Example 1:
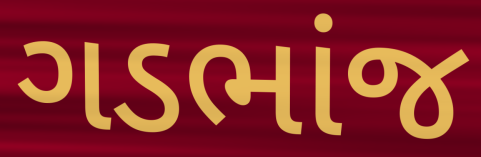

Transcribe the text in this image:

ગડભાંજ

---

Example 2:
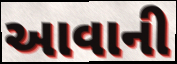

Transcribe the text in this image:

આવાની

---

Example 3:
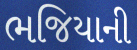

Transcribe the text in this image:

ભજિયાની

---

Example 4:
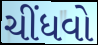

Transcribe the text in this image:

ચીંધવો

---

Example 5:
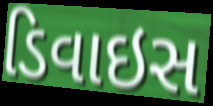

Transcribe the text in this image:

ડિવાઇસ